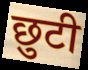
छुटी